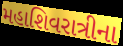
મહાશિવરાત્રીના